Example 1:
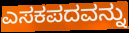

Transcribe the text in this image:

ಎಸಕಪದವನ್ನು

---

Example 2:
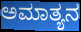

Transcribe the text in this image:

ಅಮಾತ್ಯನ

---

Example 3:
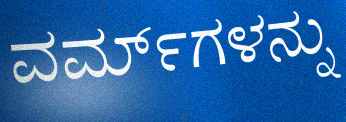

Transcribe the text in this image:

ವರ್ಮ್‌ಗಳನ್ನು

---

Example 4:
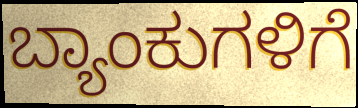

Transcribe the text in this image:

ಬ್ಯಾಂಕುಗಳಿಗೆ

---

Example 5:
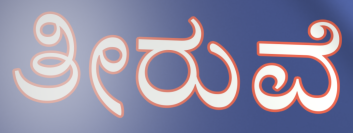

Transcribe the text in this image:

ತೀರುವೆ